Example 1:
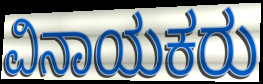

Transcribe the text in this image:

ವಿನಾಯಕರು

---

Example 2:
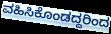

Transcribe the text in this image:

ವಹಿಸಿಕೊಂಡದ್ದರಿಂದ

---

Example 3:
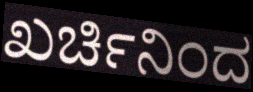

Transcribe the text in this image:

ಖರ್ಚಿನಿಂದ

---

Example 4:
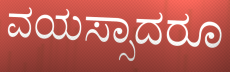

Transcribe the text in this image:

ವಯಸ್ಸಾದರೂ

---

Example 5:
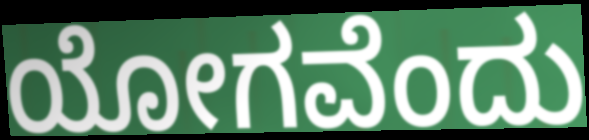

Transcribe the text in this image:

ಯೋಗವೆಂದು